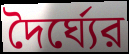
দৈর্ঘ্যের